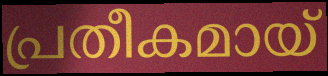
പ്രതീകമായ്